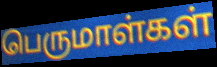
பெருமாள்கள்